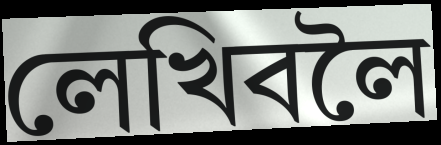
লেখিবলৈ